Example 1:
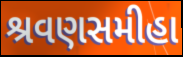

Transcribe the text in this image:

શ્રવણસમીહા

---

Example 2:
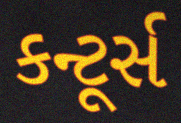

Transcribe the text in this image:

કન્ટૂર્સ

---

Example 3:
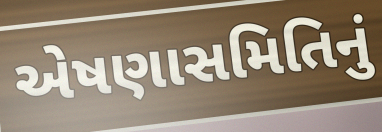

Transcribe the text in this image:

એષણાસમિતિનું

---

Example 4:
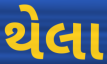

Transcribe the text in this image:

થેલા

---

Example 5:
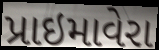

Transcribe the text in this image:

પ્રાઇમાવેરા